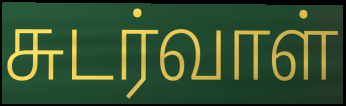
சுடர்வாள்